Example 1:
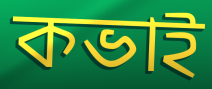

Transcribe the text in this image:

কভাই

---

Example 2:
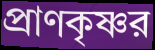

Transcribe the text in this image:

প্রাণকৃষ্ণর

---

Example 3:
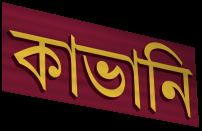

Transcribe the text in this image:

কাভানি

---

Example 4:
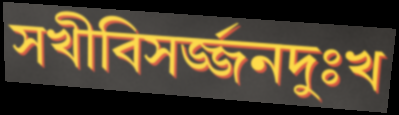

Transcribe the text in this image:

সখীবিসর্জ্জনদুঃখ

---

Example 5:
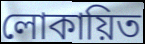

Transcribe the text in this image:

লোকায়িত